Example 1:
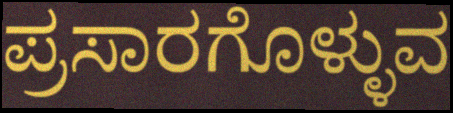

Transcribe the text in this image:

ಪ್ರಸಾರಗೊಳ್ಳುವ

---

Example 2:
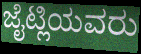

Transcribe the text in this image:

ಜೈಟ್ಲಿಯವರು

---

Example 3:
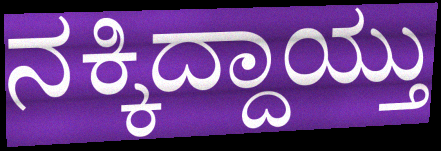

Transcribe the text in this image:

ನಕ್ಕಿದ್ದಾಯ್ತು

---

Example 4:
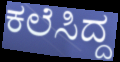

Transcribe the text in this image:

ಕಲೆಸಿದ್ದ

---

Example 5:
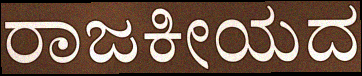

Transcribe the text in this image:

ರಾಜಕೀಯದ